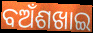
ବଅଁଶଖାଇ